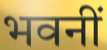
भवनीं